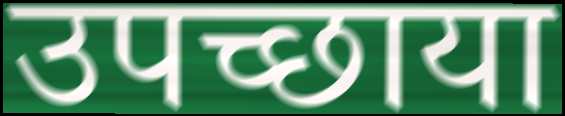
उपच्छाया